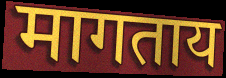
मागताय